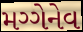
મગ્ગેનેવ